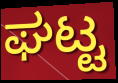
ಘಟ್ಟ